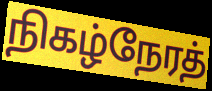
நிகழ்நேரத்